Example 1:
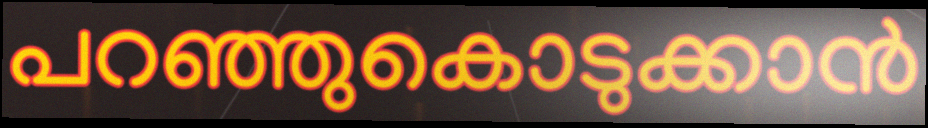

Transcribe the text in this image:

പറഞ്ഞുകൊടുക്കാൻ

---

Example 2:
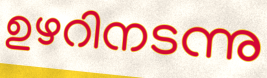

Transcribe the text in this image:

ഉഴറിനടന്നു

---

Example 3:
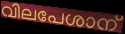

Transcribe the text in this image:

വിലപേശാന്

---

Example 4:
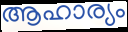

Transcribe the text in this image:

ആഹാര്യം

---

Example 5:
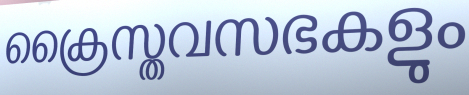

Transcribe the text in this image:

ക്രൈസ്തവസഭകളും